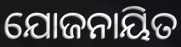
ଯୋଜନାୟିତ